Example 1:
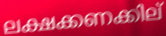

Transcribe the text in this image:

ലക്ഷക്കണക്കില്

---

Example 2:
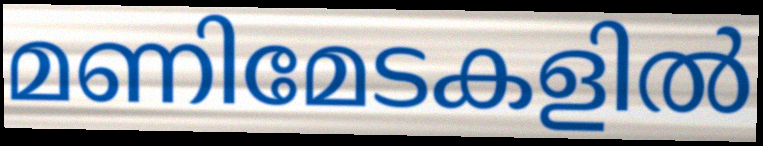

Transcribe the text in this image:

മണിമേടകളിൽ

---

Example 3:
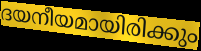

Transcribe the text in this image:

ദയനീയമായിരിക്കും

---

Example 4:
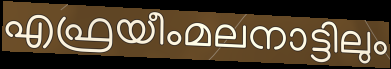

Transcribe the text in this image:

എഫ്രയീംമലനാട്ടിലും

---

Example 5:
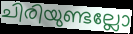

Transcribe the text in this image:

ചിരിയുണ്ടല്ലോ